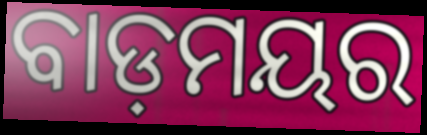
ବାଡ଼ମୟର